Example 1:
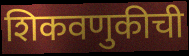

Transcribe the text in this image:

शिकवणुकीची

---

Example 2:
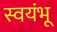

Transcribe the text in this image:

स्वयंभू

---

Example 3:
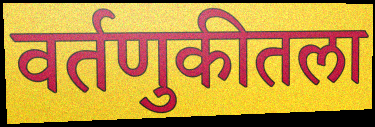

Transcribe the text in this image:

वर्तणुकीतला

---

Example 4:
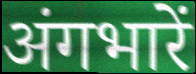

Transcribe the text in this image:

अंगभारें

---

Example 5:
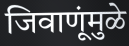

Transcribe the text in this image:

जिवाणूंमुळे